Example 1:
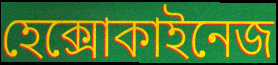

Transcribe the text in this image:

হেক্সোকাইনেজ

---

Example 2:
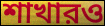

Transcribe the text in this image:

শাখারও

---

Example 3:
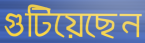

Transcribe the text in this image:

গুটিয়েছেন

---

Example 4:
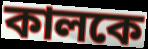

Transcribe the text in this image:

কালকে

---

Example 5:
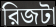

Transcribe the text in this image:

রিজটা